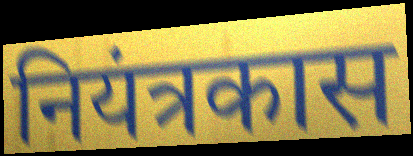
नियंत्रकास